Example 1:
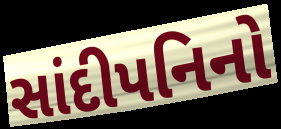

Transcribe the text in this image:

સાંદીપનિનો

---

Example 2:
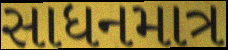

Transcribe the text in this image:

સાધનમાત્ર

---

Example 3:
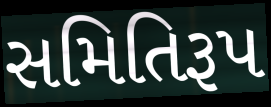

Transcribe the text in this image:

સમિતિરૂપ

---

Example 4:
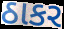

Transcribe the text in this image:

ઠાકર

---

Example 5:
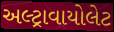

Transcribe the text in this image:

અલ્ટ્રાવાયોલેટ